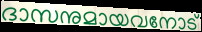
ദാസനുമായവനോട്